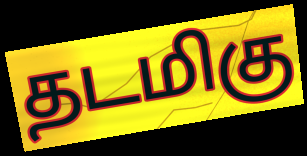
தடமிகு